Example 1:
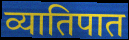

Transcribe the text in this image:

व्यातिपात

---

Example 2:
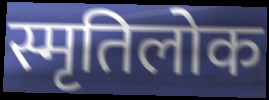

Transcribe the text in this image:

स्मृतिलोक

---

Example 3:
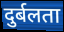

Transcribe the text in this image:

दुर्बलता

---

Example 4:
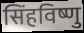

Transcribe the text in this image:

सिंहविष्णु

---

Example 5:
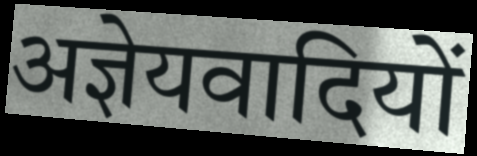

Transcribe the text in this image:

अज्ञेयवादियों